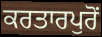
ਕਰਤਾਰਪੁਰੋਂ